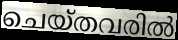
ചെയ്തവരിൽ